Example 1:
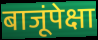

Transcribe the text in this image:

बाजूंपेक्षा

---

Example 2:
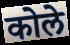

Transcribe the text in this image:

कोले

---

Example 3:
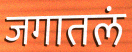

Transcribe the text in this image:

जगातलं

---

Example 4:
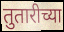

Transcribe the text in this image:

तुतारीच्या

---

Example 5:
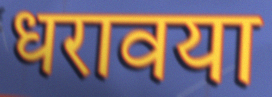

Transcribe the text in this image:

धरावया